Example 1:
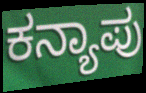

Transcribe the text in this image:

ಕನ್ಯಾಪು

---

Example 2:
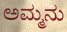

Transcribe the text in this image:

ಅಮ್ಮನು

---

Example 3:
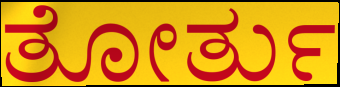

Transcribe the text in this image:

ತೋರ್ತು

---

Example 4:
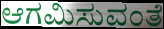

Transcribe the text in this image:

ಆಗಮಿಸುವಂತೆ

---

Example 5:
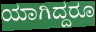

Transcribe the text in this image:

ಯಾಗಿದ್ದರೂ